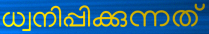
ധ്വനിപ്പിക്കുന്നത്